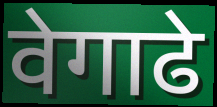
वेगाढे